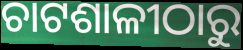
ଚାଟଶାଳୀଠାରୁ